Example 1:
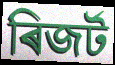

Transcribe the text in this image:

ৰিজৰ্ট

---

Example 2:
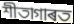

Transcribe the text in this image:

শীতাগাৰত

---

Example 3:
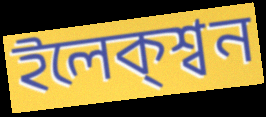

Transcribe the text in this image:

ইলেক্‌শ্বন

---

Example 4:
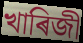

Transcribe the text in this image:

খাৰিজী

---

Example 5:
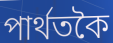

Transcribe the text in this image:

পাৰ্থতকৈ